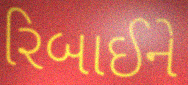
રિબાઈને